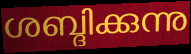
ശബ്ദിക്കുന്നു